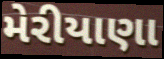
મેરીયાણા